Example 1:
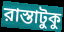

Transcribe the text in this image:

রাস্তাটুকু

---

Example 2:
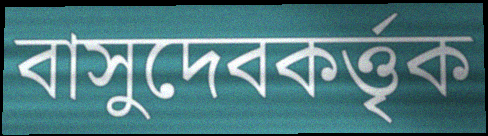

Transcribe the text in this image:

বাসুদেবকর্ত্তৃক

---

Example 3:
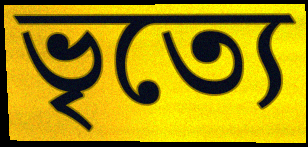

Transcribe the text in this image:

ভৃত্যে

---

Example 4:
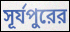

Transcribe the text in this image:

সূর্যপুরের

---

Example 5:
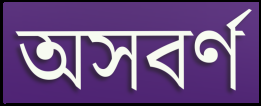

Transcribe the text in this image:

অসবর্ণ